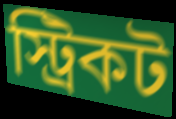
স্ট্রিকট